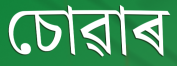
চোৱাৰ